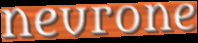
neurone